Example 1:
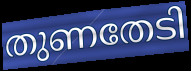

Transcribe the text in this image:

തുണതേടി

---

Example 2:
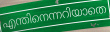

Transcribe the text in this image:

എന്തിനെന്നറിയാതെ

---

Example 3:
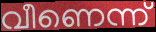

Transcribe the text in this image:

വീണെന്ന്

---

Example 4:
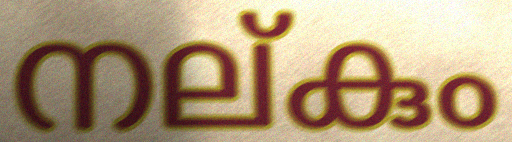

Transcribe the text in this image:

നല്‌കും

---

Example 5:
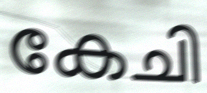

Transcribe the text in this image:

കേചി